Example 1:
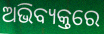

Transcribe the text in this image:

ଅଭିବ୍ୟକ୍ତରେ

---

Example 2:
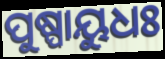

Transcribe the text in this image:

ପୁଷ୍ପାୟୁଧଃ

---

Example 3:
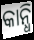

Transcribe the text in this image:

କାନ୍ଧି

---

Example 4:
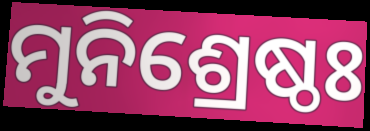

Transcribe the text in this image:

ମୁନିଶ୍ରେଷ୍ଠଃ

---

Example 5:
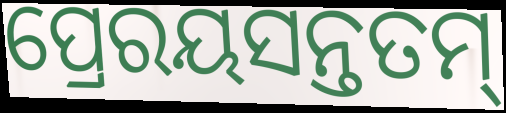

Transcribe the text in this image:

ପ୍ରେରୟସନ୍ତତମ୍